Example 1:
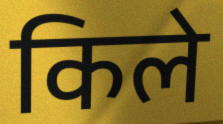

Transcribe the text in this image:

किले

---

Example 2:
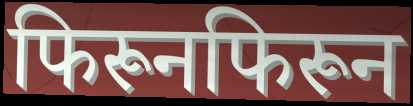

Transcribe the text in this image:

फिरूनफिरून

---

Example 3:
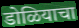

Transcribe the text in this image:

डोळियाचा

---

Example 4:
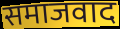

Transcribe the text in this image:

समाजवाद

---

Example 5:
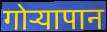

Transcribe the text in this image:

गोऱ्यापान